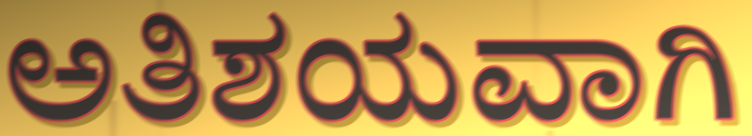
ಅತಿಶಯವಾಗಿ